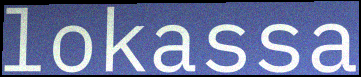
lokassa